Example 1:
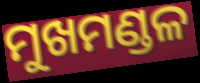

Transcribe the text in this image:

ମୁଖମଣ୍ଡଳ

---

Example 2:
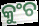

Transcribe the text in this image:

କୁଂଚ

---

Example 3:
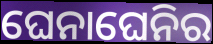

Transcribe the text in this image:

ଘେନାଘେନିର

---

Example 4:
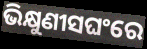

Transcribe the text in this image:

ଭିକ୍ଷୁଣୀସଘଂରେ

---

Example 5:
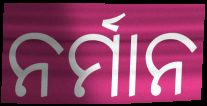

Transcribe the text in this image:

ନର୍ମାନ